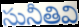
సునీతివి